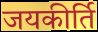
जयकीर्ति